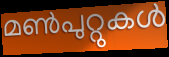
മൺപുറ്റുകൾ